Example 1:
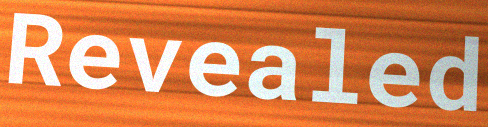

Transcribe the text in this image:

Revealed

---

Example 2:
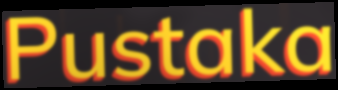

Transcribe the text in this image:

Pustaka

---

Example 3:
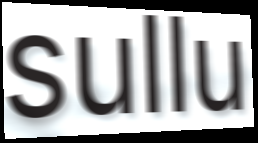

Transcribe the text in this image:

sullu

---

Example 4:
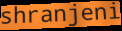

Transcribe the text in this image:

shranjeni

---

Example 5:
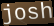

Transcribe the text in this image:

josh